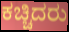
ಕಚ್ಚಿದರು